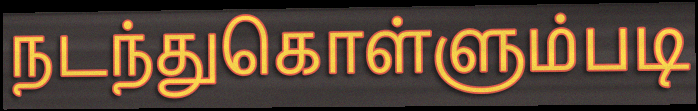
நடந்துகொள்ளும்படி